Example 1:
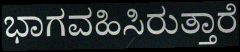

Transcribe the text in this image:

ಭಾಗವಹಿಸಿರುತ್ತಾರೆ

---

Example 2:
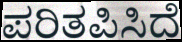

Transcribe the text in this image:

ಪರಿತಪಿಸಿದೆ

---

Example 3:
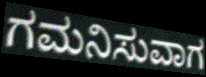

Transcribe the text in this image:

ಗಮನಿಸುವಾಗ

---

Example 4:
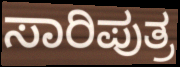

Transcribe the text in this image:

ಸಾರಿಪುತ್ರ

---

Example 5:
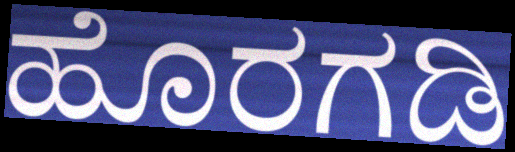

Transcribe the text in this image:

ಹೊರಗಡಿ